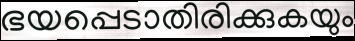
ഭയപ്പെടാതിരിക്കുകയും